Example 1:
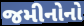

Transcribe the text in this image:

જમીનોનો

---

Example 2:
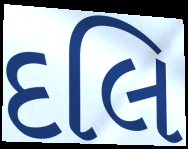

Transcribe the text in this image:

દલિ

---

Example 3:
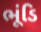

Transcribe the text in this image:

ભૂંડિ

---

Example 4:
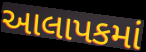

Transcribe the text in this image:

આલાપકમાં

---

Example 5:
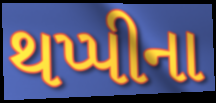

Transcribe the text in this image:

થપ્પીના